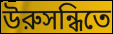
উরুসন্ধিতে